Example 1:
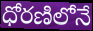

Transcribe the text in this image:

ధోరణిలోనే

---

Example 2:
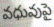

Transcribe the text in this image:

వధువుపై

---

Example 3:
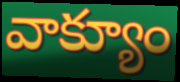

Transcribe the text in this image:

వాక్యూం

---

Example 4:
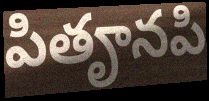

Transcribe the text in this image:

పితౄనపి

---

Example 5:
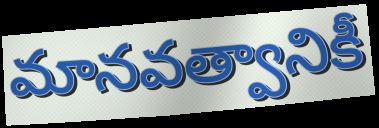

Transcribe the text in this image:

మానవత్వానికీ